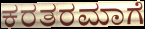
ಕರತರಮಾಗೆ